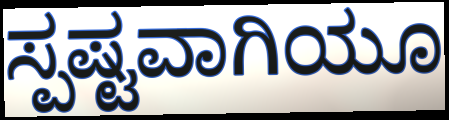
ಸ್ಪಷ್ಟವಾಗಿಯೂ